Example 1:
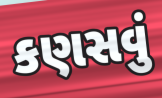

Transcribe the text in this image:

કણસવું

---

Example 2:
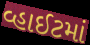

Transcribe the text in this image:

વ્હાઈટમાં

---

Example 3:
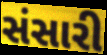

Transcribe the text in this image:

સંસારી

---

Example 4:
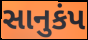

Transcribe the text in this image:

સાનુકંપ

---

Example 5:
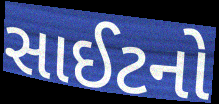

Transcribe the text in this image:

સાઈટનો